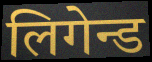
लिगेन्ड